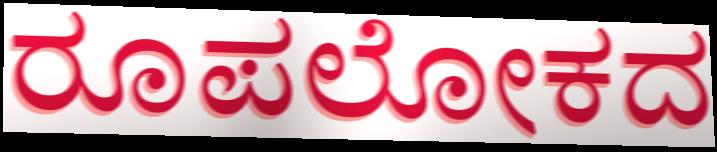
ರೂಪಲೋಕದ